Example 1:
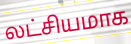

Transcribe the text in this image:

லட்சியமாக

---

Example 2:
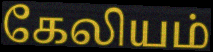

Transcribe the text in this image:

கேலியம்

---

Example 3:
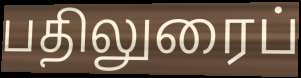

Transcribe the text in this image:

பதிலுரைப்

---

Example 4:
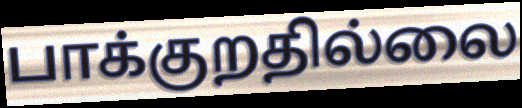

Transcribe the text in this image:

பாக்குறதில்லை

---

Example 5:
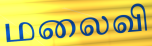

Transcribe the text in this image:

மலைவி